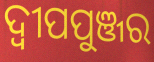
ଦ୍ଵୀପପୁଞ୍ଜର